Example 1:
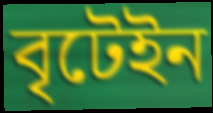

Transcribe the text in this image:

বৃটেইন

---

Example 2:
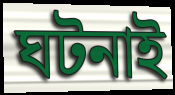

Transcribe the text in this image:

ঘটনাই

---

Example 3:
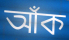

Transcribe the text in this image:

আঁক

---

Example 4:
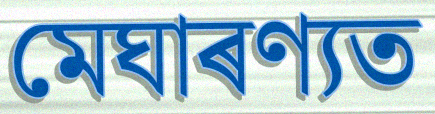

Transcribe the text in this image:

মেঘাৰণ্যত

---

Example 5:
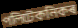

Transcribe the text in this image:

পলিটেকনিকৰ